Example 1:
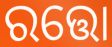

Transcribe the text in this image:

ରତ୍ତୋ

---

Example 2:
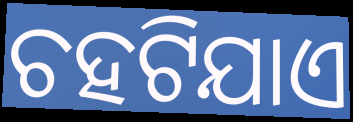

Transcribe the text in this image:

ଚହଟିଯାଏ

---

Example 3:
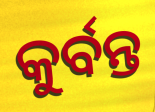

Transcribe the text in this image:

କୁର୍ବନ୍ତ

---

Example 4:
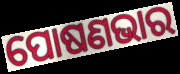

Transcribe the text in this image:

ପୋଷଣଭାର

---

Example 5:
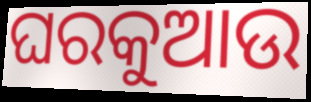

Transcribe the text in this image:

ଘରକୁଆଉ